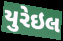
યુરેઇલ